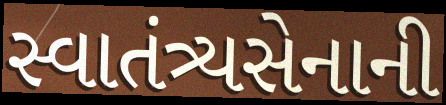
સ્વાતંત્ર્યસેનાની